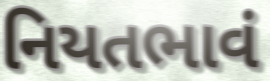
નિયતભાવં